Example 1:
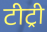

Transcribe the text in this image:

टीट्री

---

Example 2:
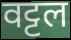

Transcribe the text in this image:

वट्टल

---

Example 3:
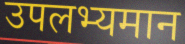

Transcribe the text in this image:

उपलभ्यमान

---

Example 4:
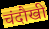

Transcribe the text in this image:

चंदौखी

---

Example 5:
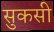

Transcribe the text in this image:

सुकसी